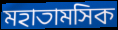
মহাতামসিক